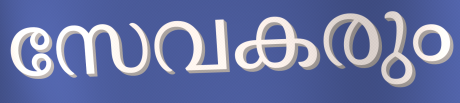
സേവകരും